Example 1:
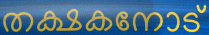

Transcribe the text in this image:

തക്ഷകനോട്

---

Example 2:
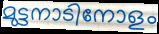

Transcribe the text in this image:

മുട്ടനാടിനോളം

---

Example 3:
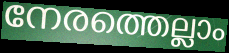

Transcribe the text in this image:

നേരത്തെല്ലാം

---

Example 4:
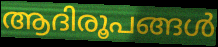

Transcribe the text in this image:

ആദിരൂപങ്ങൾ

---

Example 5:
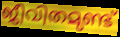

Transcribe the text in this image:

ജീവിതമുണ്ട്